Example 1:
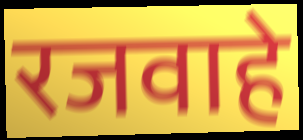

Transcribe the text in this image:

रजवाहे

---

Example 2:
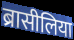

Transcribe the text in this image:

ब्रासीलिया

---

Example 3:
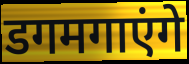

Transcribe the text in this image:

डगमगाएंगे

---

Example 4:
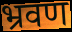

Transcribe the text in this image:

भ्रवण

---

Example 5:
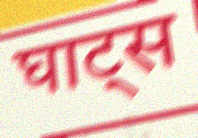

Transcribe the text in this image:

घाट्स